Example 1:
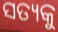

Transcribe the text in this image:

ସତ୍ୟକୁ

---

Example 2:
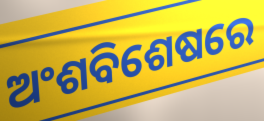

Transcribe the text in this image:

ଅଂଶବିଶେଷରେ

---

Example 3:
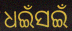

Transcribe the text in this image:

ଧଇଁସଇଁ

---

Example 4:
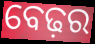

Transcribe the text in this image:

ବେଢ଼ର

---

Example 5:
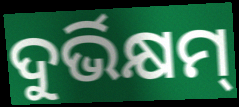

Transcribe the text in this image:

ଦୁର୍ଭିକ୍ଷମ୍